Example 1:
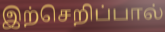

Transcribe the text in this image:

இற்செறிப்பால்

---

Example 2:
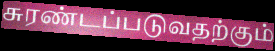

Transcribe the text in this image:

சுரண்டப்படுவதற்கும்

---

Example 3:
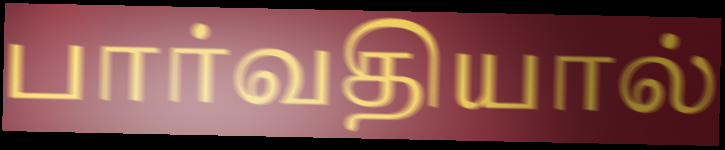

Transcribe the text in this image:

பார்வதியால்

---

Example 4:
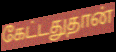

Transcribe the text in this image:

கேட்டதுதான்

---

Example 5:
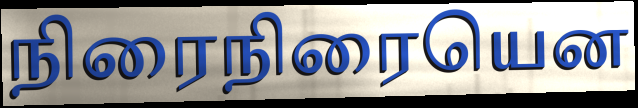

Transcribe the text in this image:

நிரைநிரையென